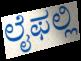
ಲೈಫಲ್ಲಿ